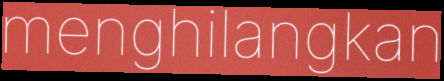
menghilangkan